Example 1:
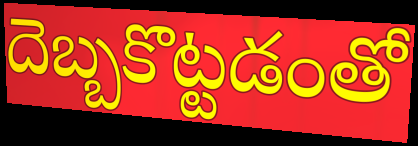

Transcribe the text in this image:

దెబ్బకొట్టడంతో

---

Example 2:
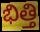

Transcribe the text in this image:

భిత్తి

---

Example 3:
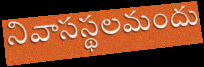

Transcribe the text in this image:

నివాసస్థలమందు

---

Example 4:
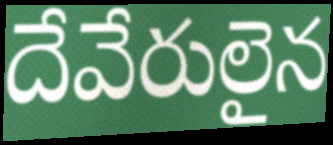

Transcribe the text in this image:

దేవేరులైన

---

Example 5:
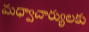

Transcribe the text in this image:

మధ్వాచార్యులకు